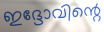
ഇദ്ദോവിന്റെ